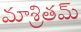
మాశ్రితమ్